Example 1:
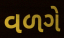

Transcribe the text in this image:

વળગે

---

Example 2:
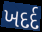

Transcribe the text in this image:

ખદર્દ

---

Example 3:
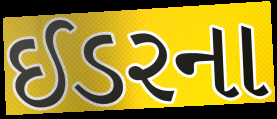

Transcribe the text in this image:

ઈડરના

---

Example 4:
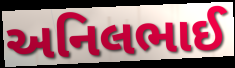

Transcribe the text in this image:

અનિલભાઈ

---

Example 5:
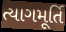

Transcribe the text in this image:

ત્યાગમૂર્તિ